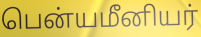
பென்யமீனியர்